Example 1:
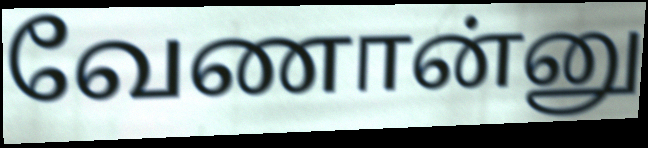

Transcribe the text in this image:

வேணான்னு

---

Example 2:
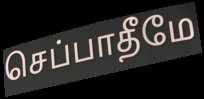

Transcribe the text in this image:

செப்பாதீமே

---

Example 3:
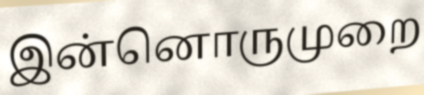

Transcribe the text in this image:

இன்னொருமுறை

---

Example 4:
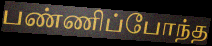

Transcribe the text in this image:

பண்ணிப்போந்த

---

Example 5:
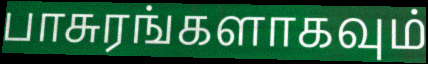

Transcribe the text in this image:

பாசுரங்களாகவும்